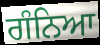
ਗੰਨਿਆ